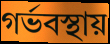
গর্ভবস্থায়